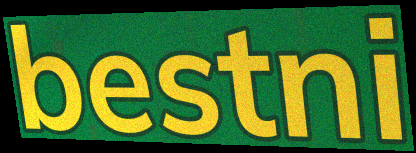
bestni